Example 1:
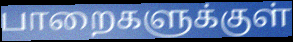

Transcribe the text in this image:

பாறைகளுக்குள்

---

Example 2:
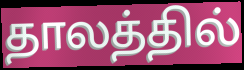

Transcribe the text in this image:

தாலத்தில்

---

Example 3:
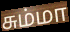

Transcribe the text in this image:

சும்மா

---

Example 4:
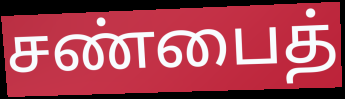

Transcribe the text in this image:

சண்பைத்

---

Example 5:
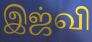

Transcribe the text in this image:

இஜ்வி